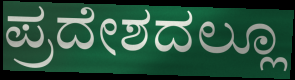
ಪ್ರದೇಶದಲ್ಲೂ